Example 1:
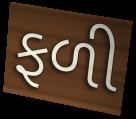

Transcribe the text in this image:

ફળી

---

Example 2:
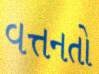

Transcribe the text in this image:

વત્તનતો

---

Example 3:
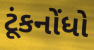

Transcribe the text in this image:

ટૂંકનોંધો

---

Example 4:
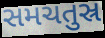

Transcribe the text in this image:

સમચતુસ્ર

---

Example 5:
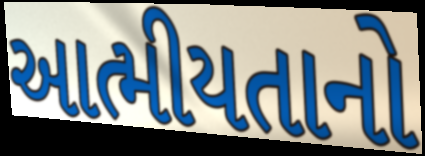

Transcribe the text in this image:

આત્મીયતાનો